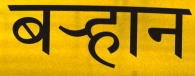
बऱ्हान